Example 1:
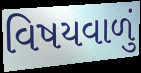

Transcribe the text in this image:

વિષયવાળું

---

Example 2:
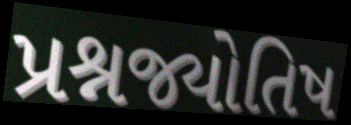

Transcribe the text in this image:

પ્રશ્નજ્યોતિષ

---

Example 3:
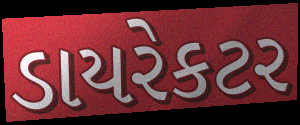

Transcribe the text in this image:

ડાયરેકટર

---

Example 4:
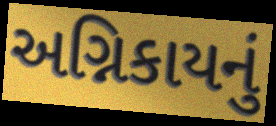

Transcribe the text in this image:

અગ્નિકાયનું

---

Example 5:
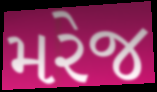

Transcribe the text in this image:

મરેજ